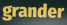
grander